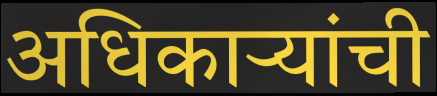
अधिकाऱ्यांची